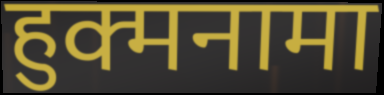
हुक्मनामा